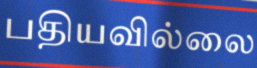
பதியவில்லை